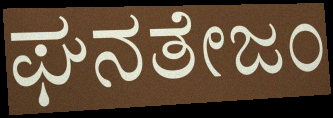
ಘನತೇಜಂ